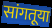
सांगतूया